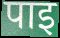
पाइ